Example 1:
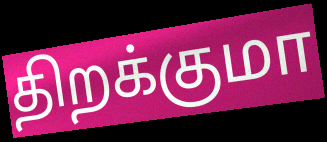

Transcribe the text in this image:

திறக்குமா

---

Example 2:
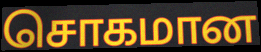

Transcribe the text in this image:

சொகமான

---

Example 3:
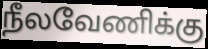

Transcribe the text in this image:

நீலவேணிக்கு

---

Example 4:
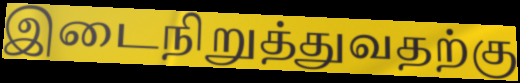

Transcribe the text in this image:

இடைநிறுத்துவதற்கு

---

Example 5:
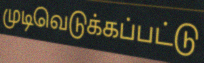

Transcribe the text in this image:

முடிவெடுக்கப்பட்டு